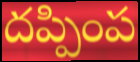
దప్పింప